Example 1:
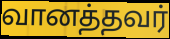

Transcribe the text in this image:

வானத்தவர்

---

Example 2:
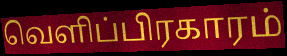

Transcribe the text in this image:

வெளிப்பிரகாரம்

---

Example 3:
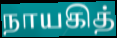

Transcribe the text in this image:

நாயகித்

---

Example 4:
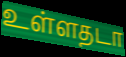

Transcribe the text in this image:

உள்ளதடா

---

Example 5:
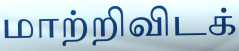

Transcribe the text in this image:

மாற்றிவிடக்